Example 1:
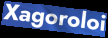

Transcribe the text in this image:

Xagoroloi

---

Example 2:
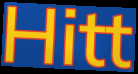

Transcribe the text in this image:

Hitt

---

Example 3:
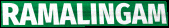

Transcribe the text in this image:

RAMALINGAM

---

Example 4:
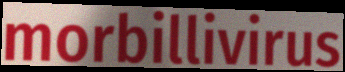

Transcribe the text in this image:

morbillivirus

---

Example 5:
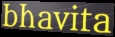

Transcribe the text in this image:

bhavita